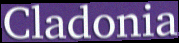
Cladonia